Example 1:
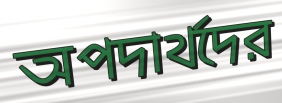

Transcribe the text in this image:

অপদার্থদের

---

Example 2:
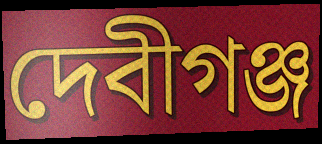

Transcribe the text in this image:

দেবীগঞ্জ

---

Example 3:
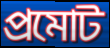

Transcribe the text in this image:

প্রমোট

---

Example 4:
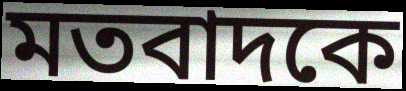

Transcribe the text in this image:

মতবাদকে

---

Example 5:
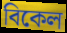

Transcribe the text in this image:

বিকেল